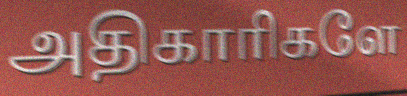
அதிகாரிகளே